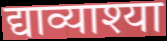
द्याव्याश्या